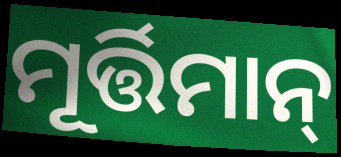
ମୂର୍ତ୍ତିମାନ୍